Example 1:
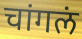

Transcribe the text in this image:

चांगलं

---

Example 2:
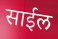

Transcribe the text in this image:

साईल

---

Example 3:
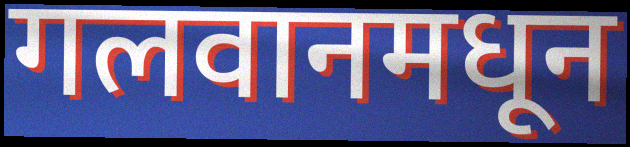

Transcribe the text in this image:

गलवानमधून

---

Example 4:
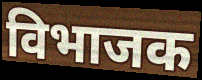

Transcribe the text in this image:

विभाजक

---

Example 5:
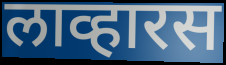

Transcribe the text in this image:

लाव्हारस